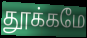
தூக்கமே